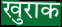
खुराक